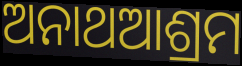
ଅନାଥଆଶ୍ରମ